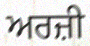
ਅਰਜ਼ੀ